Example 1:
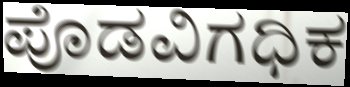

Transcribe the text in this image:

ಪೊಡವಿಗಧಿಕ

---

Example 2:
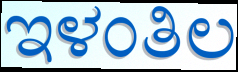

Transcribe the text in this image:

ಇಳಂತಿಲ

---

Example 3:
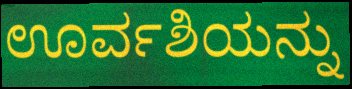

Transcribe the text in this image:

ಊರ್ವಶಿಯನ್ನು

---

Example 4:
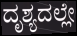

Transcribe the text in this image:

ದೃಶ್ಯದಲ್ಲೇ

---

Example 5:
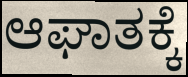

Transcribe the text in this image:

ಆಘಾತಕ್ಕೆ